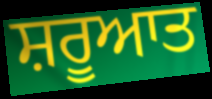
ਸ਼ਰੂਆਤ